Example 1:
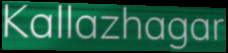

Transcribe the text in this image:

Kallazhagar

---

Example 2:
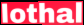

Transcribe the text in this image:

lothal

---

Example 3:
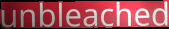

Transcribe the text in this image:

unbleached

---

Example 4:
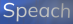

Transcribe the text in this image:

Speach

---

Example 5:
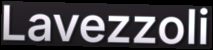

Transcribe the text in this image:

Lavezzoli